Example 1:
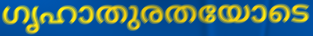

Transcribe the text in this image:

ഗൃഹാതുരതയോടെ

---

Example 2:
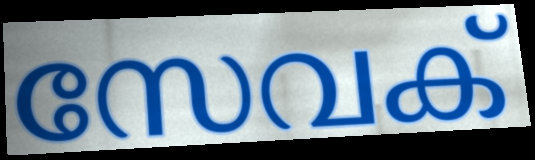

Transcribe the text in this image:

സേവക്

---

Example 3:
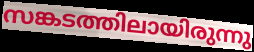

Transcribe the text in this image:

സങ്കടത്തിലായിരുന്നു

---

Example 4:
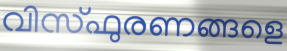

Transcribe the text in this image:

വിസ്ഫുരണങ്ങളെ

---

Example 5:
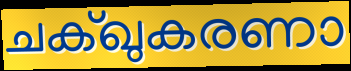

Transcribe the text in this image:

ചക്ഖുകരണാ